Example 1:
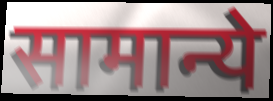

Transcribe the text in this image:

सामान्ये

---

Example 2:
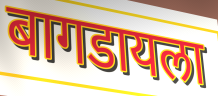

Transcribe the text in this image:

बागडायला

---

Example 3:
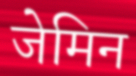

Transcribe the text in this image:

जेमिन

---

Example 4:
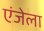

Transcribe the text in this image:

एंजेला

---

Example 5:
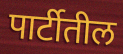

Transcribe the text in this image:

पार्टीतील